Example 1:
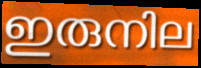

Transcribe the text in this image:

ഇരുനില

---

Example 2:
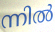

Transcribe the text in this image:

ന്നിൽ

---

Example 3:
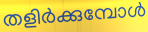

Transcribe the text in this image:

തളിർക്കുമ്പോൾ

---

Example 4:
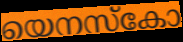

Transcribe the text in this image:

യെനസ്കോ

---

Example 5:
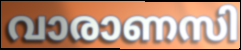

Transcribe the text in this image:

വാരാണസി